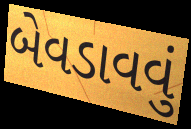
બેવડાવવું